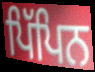
ਪਿੱਪਿਨ